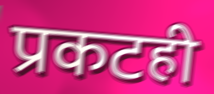
प्रकटही